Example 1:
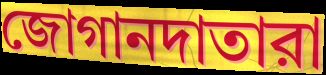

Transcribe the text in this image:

জোগানদাতারা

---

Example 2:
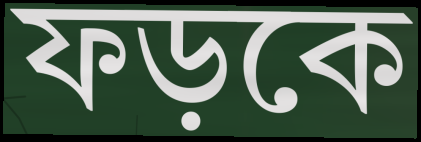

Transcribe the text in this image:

ফড়কে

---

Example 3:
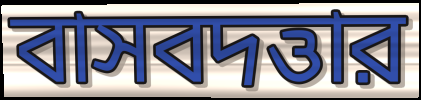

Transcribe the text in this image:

বাসবদত্তার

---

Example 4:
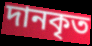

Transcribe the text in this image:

দানকৃত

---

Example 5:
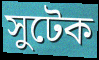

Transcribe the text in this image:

সুটেক